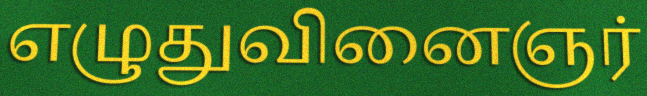
எழுதுவினைஞர்